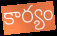
కార్యం